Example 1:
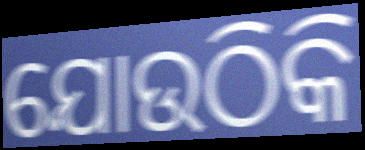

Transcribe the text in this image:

ଯୋଉଠିକି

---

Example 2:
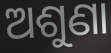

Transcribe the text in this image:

ଅଶୁଣା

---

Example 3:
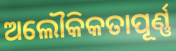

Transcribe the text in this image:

ଅଲୌକିକତାପୂର୍ଣ୍ଣ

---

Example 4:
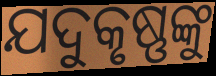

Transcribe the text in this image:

ଯଦୁକୃଷ୍ଣଙ୍କୁ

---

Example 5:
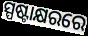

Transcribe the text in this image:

ସ୍ପଷ୍ଟାକ୍ଷରରେ